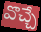
వొచ్చే